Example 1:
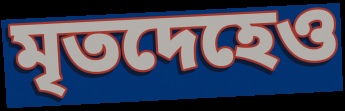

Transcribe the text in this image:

মৃতদেহেও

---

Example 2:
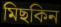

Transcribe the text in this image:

মিছকিন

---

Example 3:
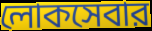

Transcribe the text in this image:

লোকসেবার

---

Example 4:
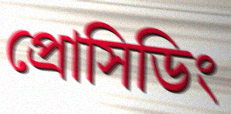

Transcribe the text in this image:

প্রোসিডিং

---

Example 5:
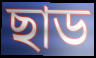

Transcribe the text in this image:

ছাড